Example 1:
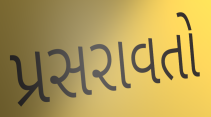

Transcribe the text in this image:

પ્રસરાવતો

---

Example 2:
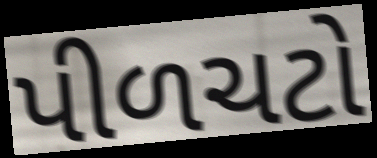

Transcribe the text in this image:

પીળચટો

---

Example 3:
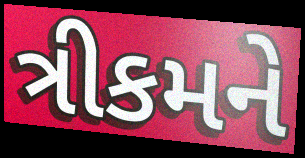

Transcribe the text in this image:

ત્રીકમને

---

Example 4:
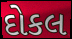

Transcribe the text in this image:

દોકલ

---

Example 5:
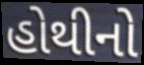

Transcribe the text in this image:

હોથીનો